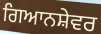
ਗਿਆਨਸ਼ੇਵਰ